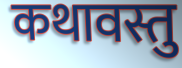
कथावस्तु